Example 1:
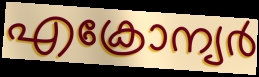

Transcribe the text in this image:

എക്രോന്യർ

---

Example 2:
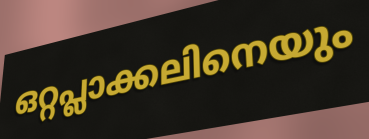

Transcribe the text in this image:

ഒറ്റപ്ലാക്കലിനെയും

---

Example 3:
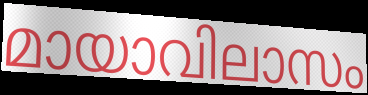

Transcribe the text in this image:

മായാവിലാസം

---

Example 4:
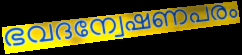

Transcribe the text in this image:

ഭവദന്വേഷണപരം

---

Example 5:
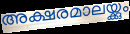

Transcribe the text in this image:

അക്ഷരമാലയ്ക്കും